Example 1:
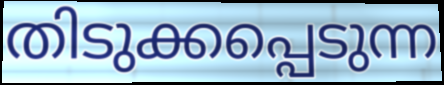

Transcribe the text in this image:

തിടുക്കപ്പെടുന്ന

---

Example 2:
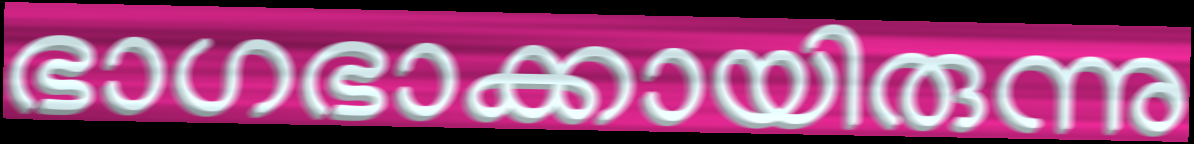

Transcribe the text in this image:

ഭാഗഭാക്കായിരുന്നു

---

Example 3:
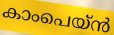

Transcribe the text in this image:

കാംപെയ്ൻ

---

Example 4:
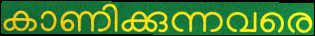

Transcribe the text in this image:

കാണിക്കുന്നവരെ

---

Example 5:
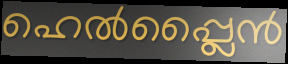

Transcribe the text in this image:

ഹെൽപ്പ്ലൈൻ